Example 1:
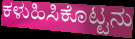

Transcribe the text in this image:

ಕಳುಹಿಸಿಕೊಟ್ಟನು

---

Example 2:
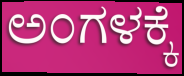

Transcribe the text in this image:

ಅಂಗಳಕ್ಕೆ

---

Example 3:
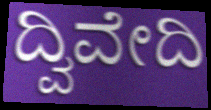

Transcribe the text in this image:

ದ್ವಿವೇದಿ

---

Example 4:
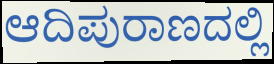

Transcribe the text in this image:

ಆದಿಪುರಾಣದಲ್ಲಿ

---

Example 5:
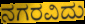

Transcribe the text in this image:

ನಗರವಿದು